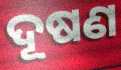
ଦୂଷଣ